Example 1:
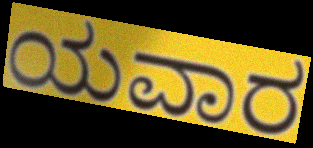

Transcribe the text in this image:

ಯವಾರ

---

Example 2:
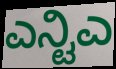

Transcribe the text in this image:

ಎನ್ಟಿಎ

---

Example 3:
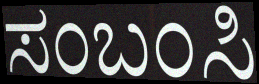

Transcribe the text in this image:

ಸಂಬಂಸಿ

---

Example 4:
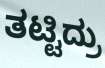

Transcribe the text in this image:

ತಟ್ಟಿದ್ರು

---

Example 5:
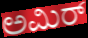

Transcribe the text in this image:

ಅಮಿರ್